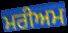
ਮਰੀਅਮ